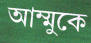
আম্মুকে